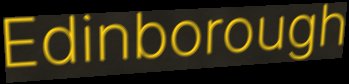
Edinborough